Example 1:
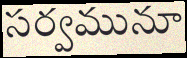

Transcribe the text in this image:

సర్వమునూ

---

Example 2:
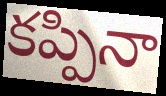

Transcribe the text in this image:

కప్పినా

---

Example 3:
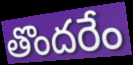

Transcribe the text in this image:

తొందరేం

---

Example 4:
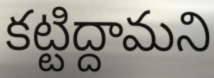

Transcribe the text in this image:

కట్టిద్దామని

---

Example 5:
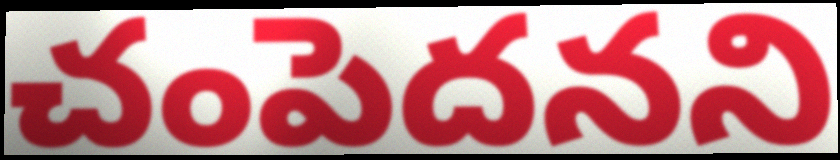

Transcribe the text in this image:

చంపెదనని